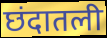
छंदातली